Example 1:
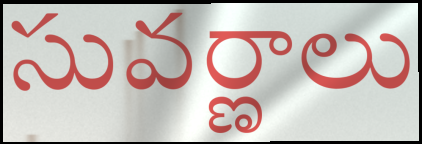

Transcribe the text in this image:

సువర్ణాలు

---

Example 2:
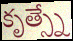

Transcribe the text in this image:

కృత్స్నే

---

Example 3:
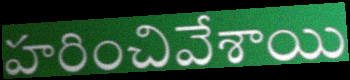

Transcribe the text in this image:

హరించివేశాయి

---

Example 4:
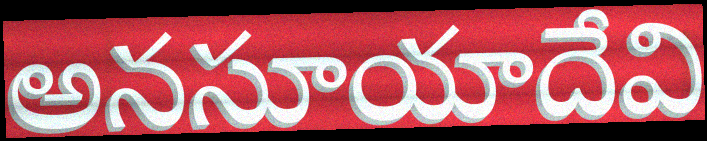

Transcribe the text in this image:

అనసూయాదేవి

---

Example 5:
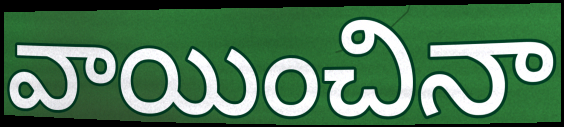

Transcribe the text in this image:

వాయించినా